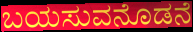
ಬಯಸುವನೊಡನೆ